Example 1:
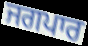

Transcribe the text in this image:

ਜਗਪਾਰ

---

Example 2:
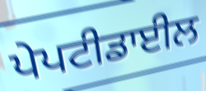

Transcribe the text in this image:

ਪੇਪਟੀਡਾਈਲ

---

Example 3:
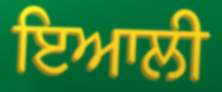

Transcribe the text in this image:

ਇਆਲੀ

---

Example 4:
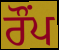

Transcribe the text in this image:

ਰੌਂਪ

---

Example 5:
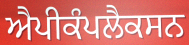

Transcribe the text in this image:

ਐਪੀਕੰਪਲੈਕਸਨ